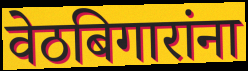
वेठबिगारांना